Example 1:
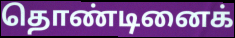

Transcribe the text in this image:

தொண்டினைக்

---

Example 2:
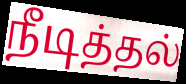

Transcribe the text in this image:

நீடித்தல்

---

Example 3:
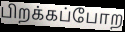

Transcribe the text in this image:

பிறக்கப்போற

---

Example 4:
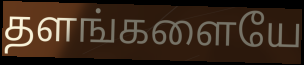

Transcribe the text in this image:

தளங்களையே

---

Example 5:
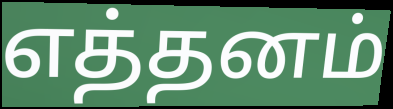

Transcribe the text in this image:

எத்தனம்